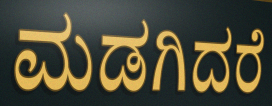
ಮಡಗಿದರೆ